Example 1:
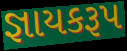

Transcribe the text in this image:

જ્ઞાયકરૂપ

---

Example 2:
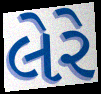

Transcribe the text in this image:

લેરે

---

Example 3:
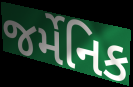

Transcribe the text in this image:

જર્મેનિક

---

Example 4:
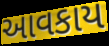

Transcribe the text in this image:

આવકાય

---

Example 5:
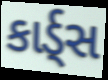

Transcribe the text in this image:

કાર્ડ્સ